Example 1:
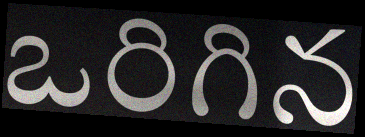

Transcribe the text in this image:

ఒరిగిన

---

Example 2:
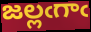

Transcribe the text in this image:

జల్లఁగాఁ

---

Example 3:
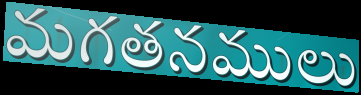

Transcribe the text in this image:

మగతనములు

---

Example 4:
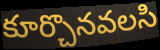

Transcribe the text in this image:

కూర్చొనవలసి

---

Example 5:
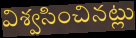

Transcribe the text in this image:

విశ్వసించినట్లు